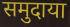
समुदाया